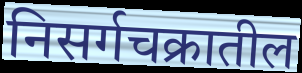
निसर्गचक्रातील